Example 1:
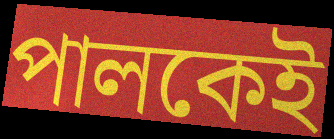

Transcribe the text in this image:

পালকেই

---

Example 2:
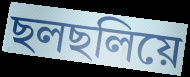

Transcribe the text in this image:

ছলছলিয়ে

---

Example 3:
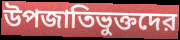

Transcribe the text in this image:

উপজাতিভুক্তদের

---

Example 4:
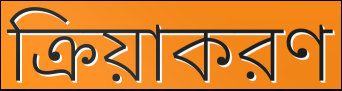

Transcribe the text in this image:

ক্রিয়াকরণ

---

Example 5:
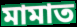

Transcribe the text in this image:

মামাত